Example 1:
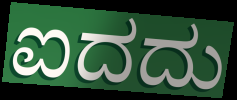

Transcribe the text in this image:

ಐದದು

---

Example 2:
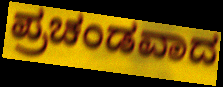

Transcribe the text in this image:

ಪ್ರಚಂಡವಾದ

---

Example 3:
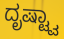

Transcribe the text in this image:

ದೃಷ್ಟ್ವಾ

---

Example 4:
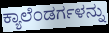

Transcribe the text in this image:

ಕ್ಯಾಲೆಂಡರ್ಗಳನ್ನು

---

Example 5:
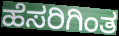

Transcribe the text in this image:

ಹೆಸರಿಗಿಂತ